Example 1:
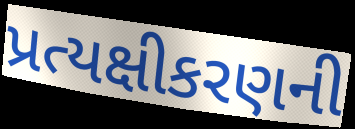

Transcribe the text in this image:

પ્રત્યક્ષીકરણની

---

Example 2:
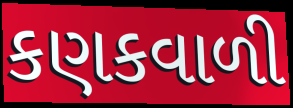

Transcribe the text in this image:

કણકવાળી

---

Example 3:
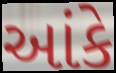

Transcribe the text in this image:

આંકે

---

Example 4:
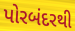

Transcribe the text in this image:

પોરબંદરથી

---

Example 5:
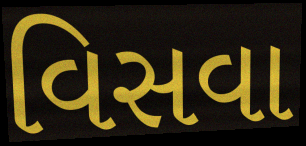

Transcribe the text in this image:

વિસવા